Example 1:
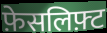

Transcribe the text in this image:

फ़ेसलिफ़्ट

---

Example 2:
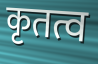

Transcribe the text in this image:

कृतत्व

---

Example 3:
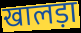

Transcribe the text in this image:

खालड़ा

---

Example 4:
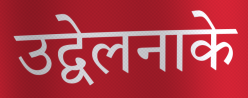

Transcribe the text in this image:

उद्वेलनाके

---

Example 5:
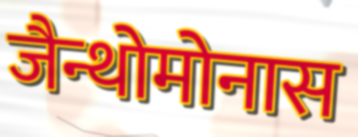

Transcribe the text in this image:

जैन्थोमोनास